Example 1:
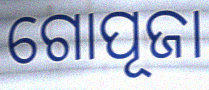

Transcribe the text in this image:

ଗୋପୂଜା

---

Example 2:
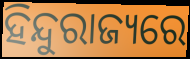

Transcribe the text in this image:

ହିନ୍ଦୁରାଜ୍ୟରେ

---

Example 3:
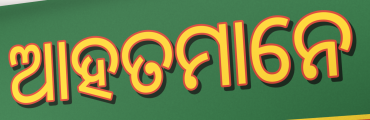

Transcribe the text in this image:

ଆହତମାନେ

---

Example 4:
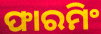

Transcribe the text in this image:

ଫାରମିଂ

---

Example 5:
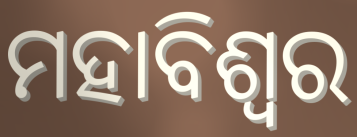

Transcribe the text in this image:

ମହାବିଶ୍ଵର